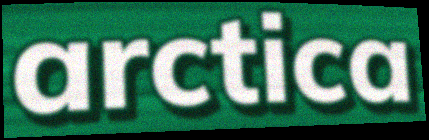
arctica